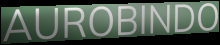
AUROBINDO